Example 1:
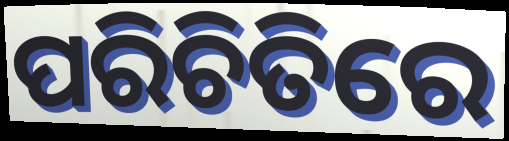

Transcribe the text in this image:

ପରିଚିତିରେ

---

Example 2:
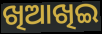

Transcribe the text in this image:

ଖିଆଖିଇ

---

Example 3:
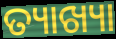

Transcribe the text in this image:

ତ୍ୟାଖ୍ୟା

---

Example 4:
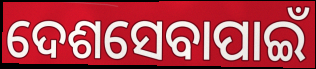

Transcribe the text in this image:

ଦେଶସେବାପାଇଁ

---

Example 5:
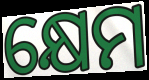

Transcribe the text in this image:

କ୍ଷେମ